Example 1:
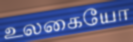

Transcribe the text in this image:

உலகையோ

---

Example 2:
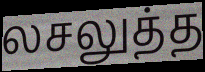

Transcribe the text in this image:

லசலுத்த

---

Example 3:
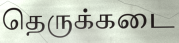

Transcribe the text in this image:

தெருக்கடை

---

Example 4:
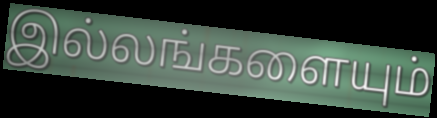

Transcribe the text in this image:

இல்லங்களையும்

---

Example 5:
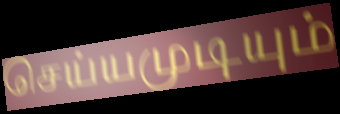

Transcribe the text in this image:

செய்யமுடியும்